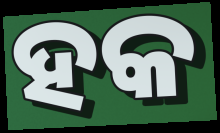
ହକ